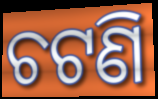
ଚଟଣି